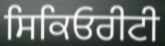
ਸਿਕਿਓਰੀਟੀ